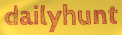
dailyhunt